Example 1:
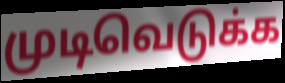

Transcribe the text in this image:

முடிவெடுக்க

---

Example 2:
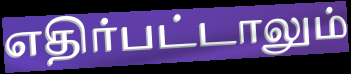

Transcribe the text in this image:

எதிர்பட்டாலும்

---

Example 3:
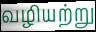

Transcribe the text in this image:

வழியற்று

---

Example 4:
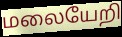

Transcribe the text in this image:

மலையேறி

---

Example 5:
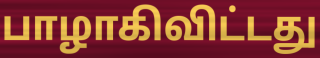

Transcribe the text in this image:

பாழாகிவிட்டது